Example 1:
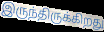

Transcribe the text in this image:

இருந்திருக்கிறது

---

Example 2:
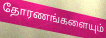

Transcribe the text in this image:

தோரணங்களையும்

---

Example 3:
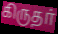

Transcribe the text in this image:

கிருதர்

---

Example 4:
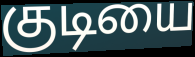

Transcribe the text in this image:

குடியை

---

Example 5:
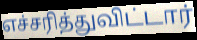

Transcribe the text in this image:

எச்சரித்துவிட்டார்